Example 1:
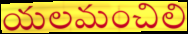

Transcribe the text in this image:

యలమంచిలి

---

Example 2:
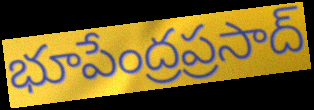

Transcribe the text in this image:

భూపేంద్రప్రసాద్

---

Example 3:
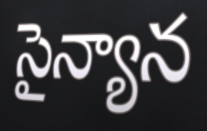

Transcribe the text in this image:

సైన్యాన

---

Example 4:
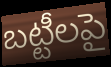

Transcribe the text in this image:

బట్టీలపై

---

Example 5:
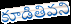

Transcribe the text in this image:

కూడితివని